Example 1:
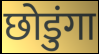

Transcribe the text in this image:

छोडुंगा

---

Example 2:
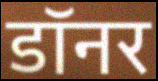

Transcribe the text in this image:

डॉनर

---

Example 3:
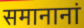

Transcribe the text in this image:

समानानां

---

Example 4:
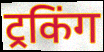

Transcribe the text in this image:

ट्रकिंग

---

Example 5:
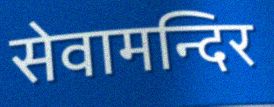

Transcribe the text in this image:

सेवामन्दिर